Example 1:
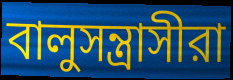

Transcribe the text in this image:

বালুসন্ত্রাসীরা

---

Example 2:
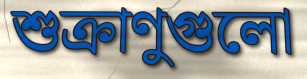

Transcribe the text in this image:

শুক্রাণুগুলো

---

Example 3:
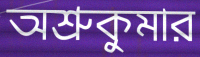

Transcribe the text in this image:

অশ্রুকুমার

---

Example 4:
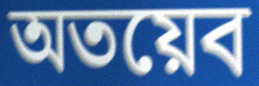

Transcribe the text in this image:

অতয়েব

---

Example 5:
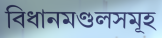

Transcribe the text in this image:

বিধানমণ্ডলসমূহ